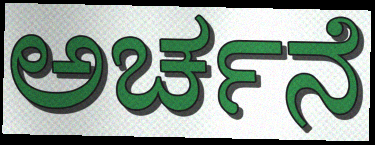
ಅರ್ಚನೆ